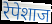
रेपेशाज